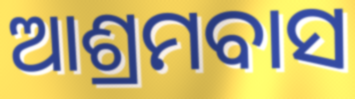
ଆଶ୍ରମବାସ